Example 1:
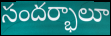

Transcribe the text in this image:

సందర్భాలూ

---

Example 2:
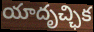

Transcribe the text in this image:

యాదృచ్ఛిక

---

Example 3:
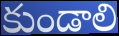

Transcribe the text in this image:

కుండాలి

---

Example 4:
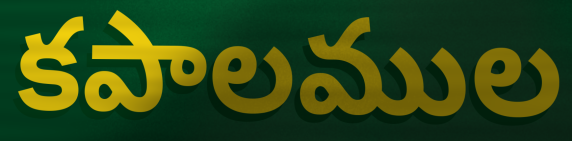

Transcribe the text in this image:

కపాలముల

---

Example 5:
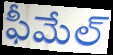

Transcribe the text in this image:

ఫీమేల్